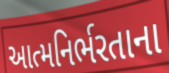
આત્મનિર્ભરતાના